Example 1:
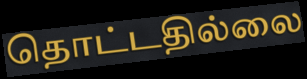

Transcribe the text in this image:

தொட்டதில்லை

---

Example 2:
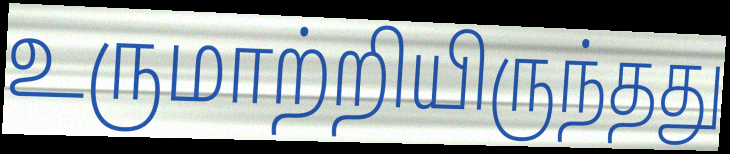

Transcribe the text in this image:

உருமாற்றியிருந்தது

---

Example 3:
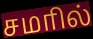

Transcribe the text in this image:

சமரில்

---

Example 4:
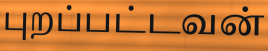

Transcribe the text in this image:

புறப்பட்டவன்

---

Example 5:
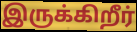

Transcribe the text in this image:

இருக்கிறீர்